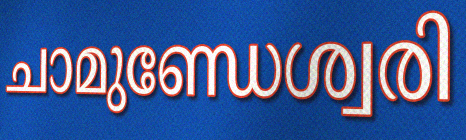
ചാമുണ്ഡേശ്വരി